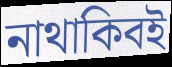
নাথাকিবই